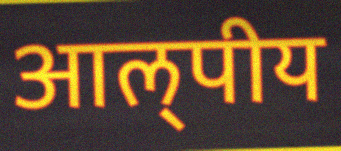
आल्पीय